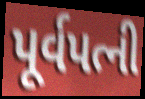
પૂર્વપત્ની